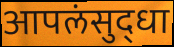
आपलंसुद्धा